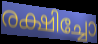
രക്ഷിച്ചോ